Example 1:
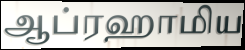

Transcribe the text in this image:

ஆப்ரஹாமிய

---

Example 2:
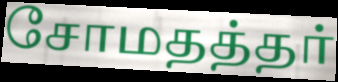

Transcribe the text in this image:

சோமதத்தர்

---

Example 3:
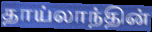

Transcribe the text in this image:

தாய்லாந்தின்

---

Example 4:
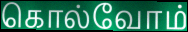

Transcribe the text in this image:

கொல்வோம்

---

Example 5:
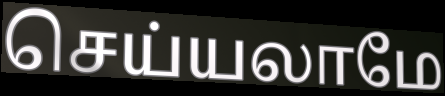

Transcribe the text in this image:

செய்யலாமே